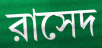
রাসেদ